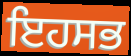
ਇਹਸਭ